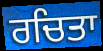
ਰਚਿਤਾ